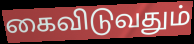
கைவிடுவதும்